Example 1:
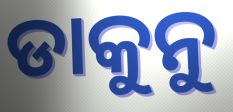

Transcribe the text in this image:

ଡାକୁନୁ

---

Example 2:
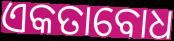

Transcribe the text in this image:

ଏକତାବୋଧ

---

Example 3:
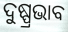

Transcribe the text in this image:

ଦୁଷ୍ପ୍ରଭାବ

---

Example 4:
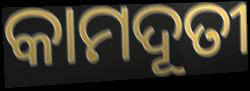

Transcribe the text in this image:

କାମଦୂତୀ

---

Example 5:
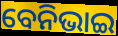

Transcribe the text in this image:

ବେନିଭାଇ